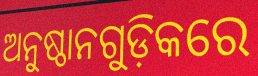
ଅନୁଷ୍ଠାନଗୁଡ଼ିକରେ